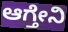
ಆಗ್ತೇನಿ